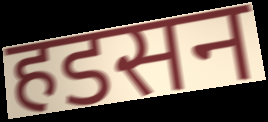
हडसन